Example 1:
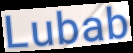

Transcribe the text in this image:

Lubab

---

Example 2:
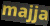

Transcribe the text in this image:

majja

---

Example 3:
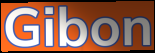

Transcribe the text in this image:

Gibon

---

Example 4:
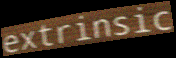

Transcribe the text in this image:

extrinsic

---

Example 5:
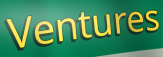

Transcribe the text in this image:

Ventures